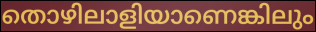
തൊഴിലാളിയാണെങ്കിലും